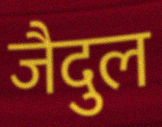
जैदुल